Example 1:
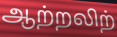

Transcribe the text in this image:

ஆற்றலிற்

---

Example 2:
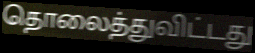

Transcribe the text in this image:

தொலைத்துவிட்டது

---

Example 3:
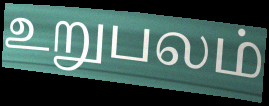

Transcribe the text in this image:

உறுபலம்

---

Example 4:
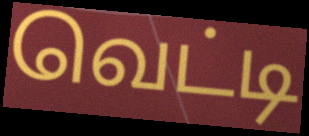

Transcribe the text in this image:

வெட்டி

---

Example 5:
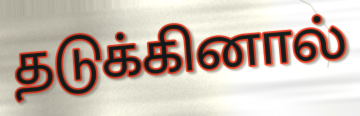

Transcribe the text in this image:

தடுக்கினால்